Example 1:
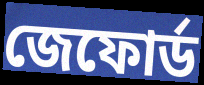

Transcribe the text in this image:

জেফোর্ড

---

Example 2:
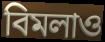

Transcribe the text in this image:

বিমলাও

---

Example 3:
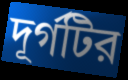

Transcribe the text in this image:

দূর্গটির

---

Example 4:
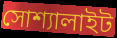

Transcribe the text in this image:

সোশ্যালাইট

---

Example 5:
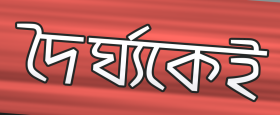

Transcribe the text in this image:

দৈর্ঘ্যকেই